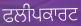
ਫਲੀਪਕਾਰਟ